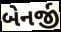
બેનર્જી